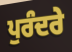
ਪੁਰੰਦਰੇ